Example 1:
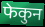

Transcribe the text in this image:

फेकुन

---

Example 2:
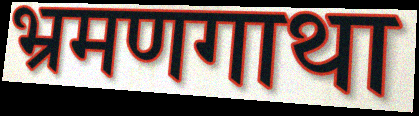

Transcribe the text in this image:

भ्रमणगाथा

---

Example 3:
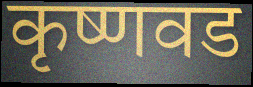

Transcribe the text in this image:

कृष्णवड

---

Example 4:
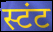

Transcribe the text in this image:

स्टंट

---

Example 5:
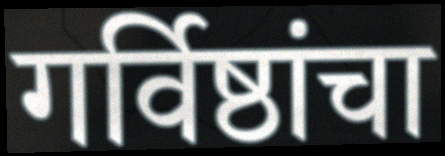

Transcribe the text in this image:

गर्विष्ठांचा